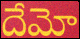
దేమో